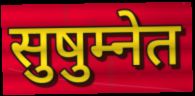
सुषुम्नेत